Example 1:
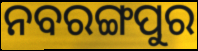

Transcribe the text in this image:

ନବରଙ୍ଗପୁର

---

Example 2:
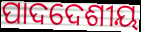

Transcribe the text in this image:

ପାଦଦେଶୀୟ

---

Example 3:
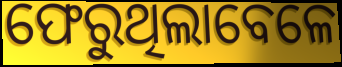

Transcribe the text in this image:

ଫେରୁଥିଲାବେଳେ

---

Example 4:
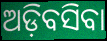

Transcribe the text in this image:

ଅଡ଼ିବସିବା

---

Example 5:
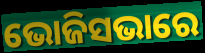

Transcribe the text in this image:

ଭୋଜିସଭାରେ